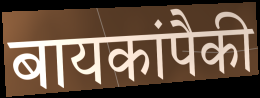
बायकांपैकी